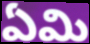
ఏమి